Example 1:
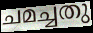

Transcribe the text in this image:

ചമച്ചതു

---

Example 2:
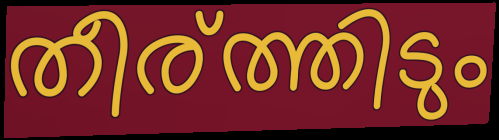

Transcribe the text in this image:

തീര്ത്തിടും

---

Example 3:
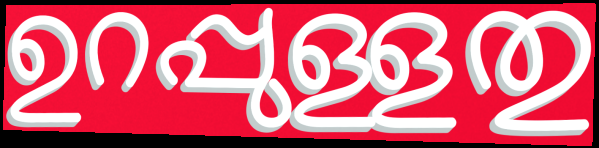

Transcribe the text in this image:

ഉറപ്പുള്ളതു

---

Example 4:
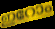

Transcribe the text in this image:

ഇറോം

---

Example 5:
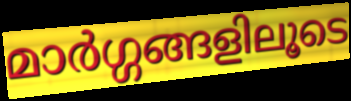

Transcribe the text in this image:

മാർഗ്ഗങ്ങളിലൂടെ